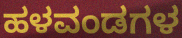
ಹಳವಂಡಗಳ